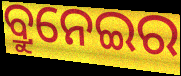
ବ୍ରୁନେଇର